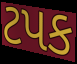
ટપક